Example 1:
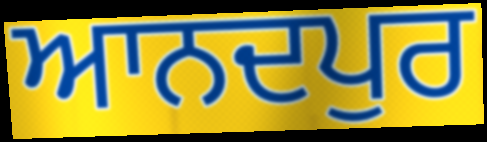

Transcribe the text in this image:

ਆਨਦਪੁਰ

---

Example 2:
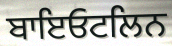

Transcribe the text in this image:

ਬਾਇਓਟਲਿਨ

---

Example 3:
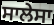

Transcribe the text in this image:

ਸਾਲੇਸਾ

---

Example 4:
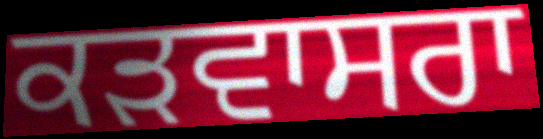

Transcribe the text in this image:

ਕੜਵਾਸਰਾ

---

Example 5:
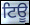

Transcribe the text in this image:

ਟਿਊ